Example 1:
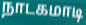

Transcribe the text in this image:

நாடகமாடி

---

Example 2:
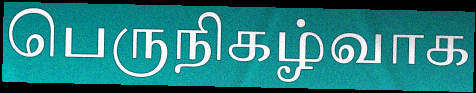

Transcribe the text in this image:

பெருநிகழ்வாக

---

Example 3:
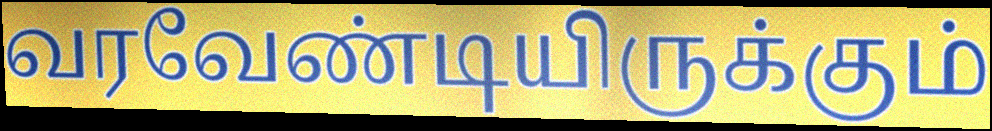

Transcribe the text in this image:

வரவேண்டியிருக்கும்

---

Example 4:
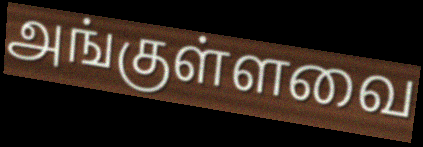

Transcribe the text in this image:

அங்குள்ளவை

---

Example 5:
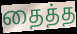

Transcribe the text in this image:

தைத்த